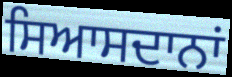
ਸਿਆਸਦਾਨਾਂ